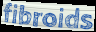
fibroids